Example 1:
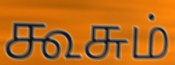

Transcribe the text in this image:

கூசும்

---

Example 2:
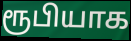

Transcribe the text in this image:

ரூபியாக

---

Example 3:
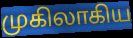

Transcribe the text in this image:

முகிலாகிய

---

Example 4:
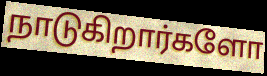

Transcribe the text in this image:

நாடுகிறார்களோ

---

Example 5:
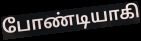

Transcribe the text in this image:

போண்டியாகி